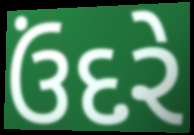
ઉંદરે